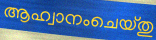
ആഹ്വാനംചെയ്തു